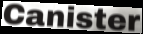
Canister